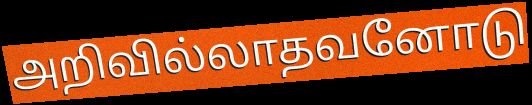
அறிவில்லாதவனோடு